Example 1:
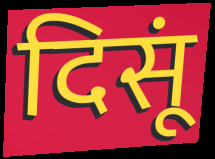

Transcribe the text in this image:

दिसूं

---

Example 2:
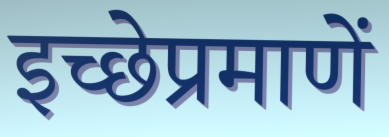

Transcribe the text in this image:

इच्छेप्रमाणें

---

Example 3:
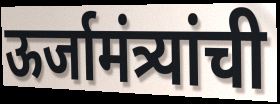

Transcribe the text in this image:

ऊर्जामंत्र्यांची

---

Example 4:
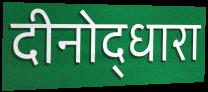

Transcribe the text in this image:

दीनोद्धारा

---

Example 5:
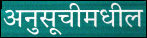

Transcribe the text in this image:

अनुसूचीमधील